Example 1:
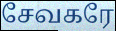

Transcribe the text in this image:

சேவகரே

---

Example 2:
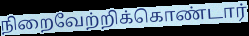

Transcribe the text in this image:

நிறைவேற்றிக்கொண்டார்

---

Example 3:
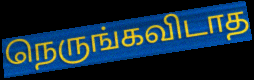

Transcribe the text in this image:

நெருங்கவிடாத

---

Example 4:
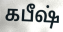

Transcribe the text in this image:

கபீஷ்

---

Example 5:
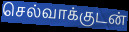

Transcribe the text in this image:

செல்வாக்குடன்